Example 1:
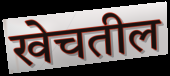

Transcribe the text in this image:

खेचतील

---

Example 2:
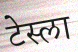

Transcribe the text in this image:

टेस्ला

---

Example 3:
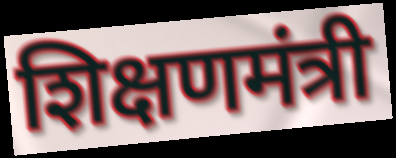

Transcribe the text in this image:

शिक्षणमंत्री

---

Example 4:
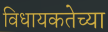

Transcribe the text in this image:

विधायकतेच्या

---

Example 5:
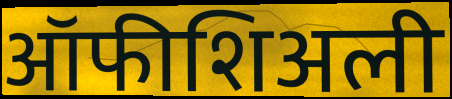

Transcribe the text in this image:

ऑफीशिअली